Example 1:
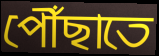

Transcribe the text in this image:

পৌঁছাতে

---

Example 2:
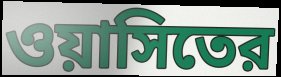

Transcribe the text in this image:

ওয়াসিতের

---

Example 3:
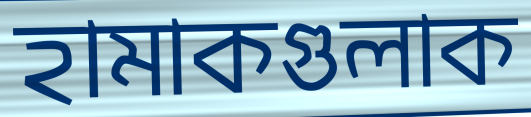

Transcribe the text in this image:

হামাকগুলাক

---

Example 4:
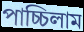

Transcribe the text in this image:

পাচ্চিলাম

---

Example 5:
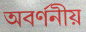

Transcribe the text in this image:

অবর্ণনীয়